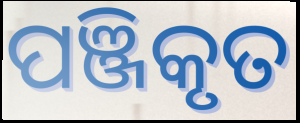
ପଞ୍ଜିକୃତ